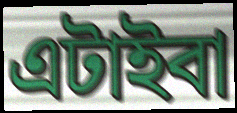
এটাইবা